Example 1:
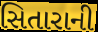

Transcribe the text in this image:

સિતારાની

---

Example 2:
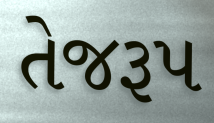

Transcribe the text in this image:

તેજરૂપ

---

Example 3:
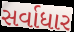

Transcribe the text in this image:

સર્વાધાર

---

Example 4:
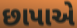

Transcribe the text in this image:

છાપાએ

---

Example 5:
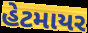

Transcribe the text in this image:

હેટમાયર